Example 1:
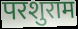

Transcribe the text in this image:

परशुराम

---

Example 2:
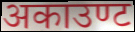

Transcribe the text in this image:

अकाउण्ट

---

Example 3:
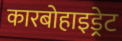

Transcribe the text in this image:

कारबोहाइड्रेट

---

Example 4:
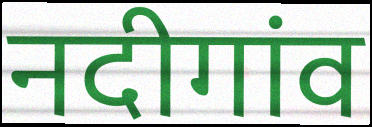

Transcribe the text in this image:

नदीगांव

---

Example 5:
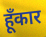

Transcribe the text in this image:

हूँकार